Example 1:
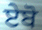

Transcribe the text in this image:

ਏਬੋ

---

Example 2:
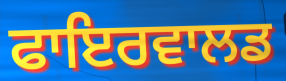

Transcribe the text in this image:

ਫਾਇਰਵਾਲਡ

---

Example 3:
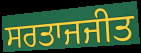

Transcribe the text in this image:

ਸਰਤਾਜਜੀਤ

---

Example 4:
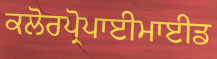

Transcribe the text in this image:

ਕਲੋਰਪ੍ਰੋਪਾਈਮਾਈਡ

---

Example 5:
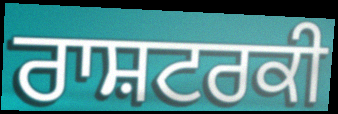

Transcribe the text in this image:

ਰਾਸ਼ਟਰਕੀ